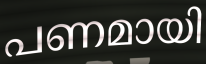
പണമായി